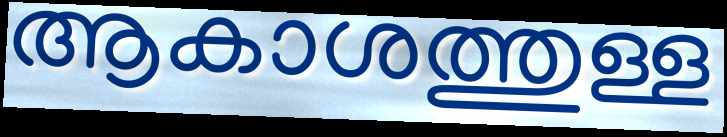
ആകാശത്തുള്ള